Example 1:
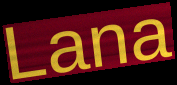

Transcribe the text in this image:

Lana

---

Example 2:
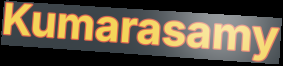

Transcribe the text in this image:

Kumarasamy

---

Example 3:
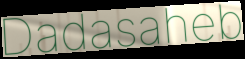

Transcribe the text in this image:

Dadasaheb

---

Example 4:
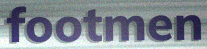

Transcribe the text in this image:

footmen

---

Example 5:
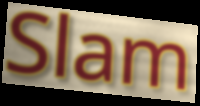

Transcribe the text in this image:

Slam